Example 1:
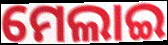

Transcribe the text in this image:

ମେଲାଇ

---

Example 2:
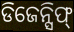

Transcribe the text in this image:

ଡିଜେନ୍ସିଫ୍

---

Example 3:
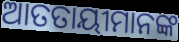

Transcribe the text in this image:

ଆତତାୟୀମାନଙ୍କ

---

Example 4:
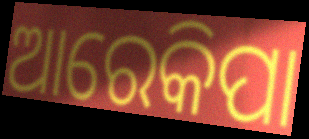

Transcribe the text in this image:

ଆରେକିପା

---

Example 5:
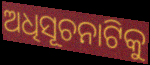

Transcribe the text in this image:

ଅଧିସୂଚନାଟିକୁ